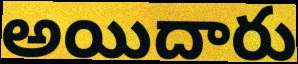
అయిదారు